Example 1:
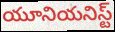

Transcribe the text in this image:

యూనియనిస్ట్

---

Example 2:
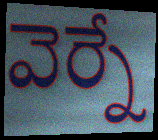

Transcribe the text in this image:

వెర్నే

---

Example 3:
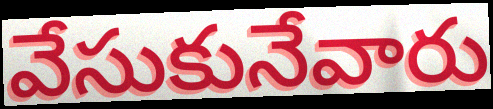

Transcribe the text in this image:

వేసుకునేవారు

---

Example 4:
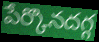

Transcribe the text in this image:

పేర్కొనదగ్గ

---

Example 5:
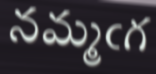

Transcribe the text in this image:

నమ్మఁగ